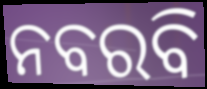
ନବରବି